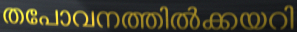
തപോവനത്തിൽക്കയറി